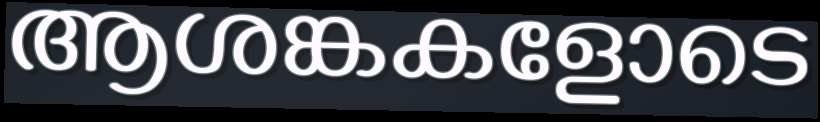
ആശങ്കകളോടെ